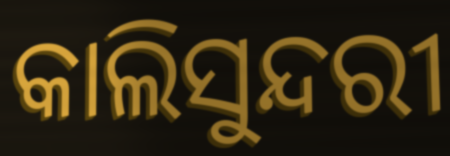
କାଲିସୁନ୍ଦରୀ